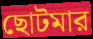
ছোটমার